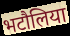
भटौलिया